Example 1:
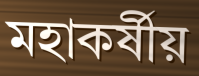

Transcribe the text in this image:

মহাকর্ষীয়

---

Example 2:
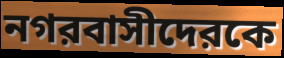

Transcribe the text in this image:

নগরবাসীদেরকে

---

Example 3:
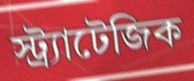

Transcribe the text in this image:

স্ট্র্যাটেজিক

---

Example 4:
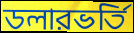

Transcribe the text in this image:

ডলারভর্তি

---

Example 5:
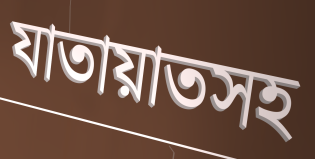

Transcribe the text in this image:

যাতায়াতসহ